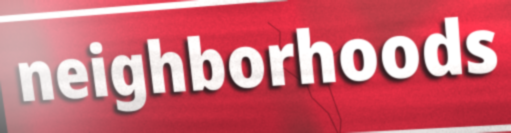
neighborhoods